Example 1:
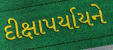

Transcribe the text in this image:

દીક્ષાપર્યાયને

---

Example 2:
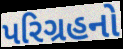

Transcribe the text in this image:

પરિગ્રહનો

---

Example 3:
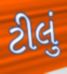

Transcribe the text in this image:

ટીલું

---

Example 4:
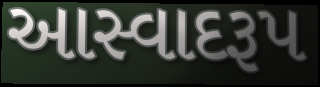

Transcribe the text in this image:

આસ્વાદરૂપ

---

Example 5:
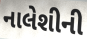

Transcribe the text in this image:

નાલેશીની